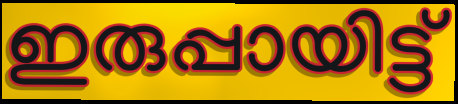
ഇരുപ്പായിട്ട്